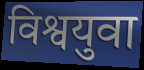
विश्वयुवा